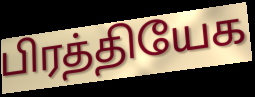
பிரத்தியேக